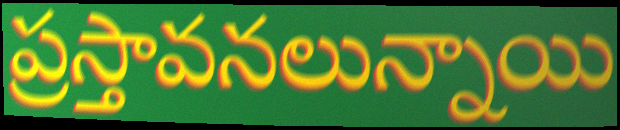
ప్రస్తావనలున్నాయి